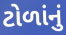
ટોળાંનું